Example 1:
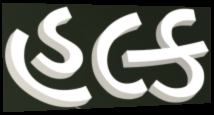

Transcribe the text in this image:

હલ્ક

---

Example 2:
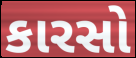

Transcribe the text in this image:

કારસો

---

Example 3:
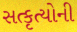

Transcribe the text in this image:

સત્કૃત્યોની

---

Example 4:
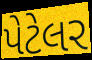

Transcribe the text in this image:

પેટેલર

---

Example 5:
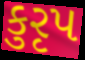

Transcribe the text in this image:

કુરૃપ